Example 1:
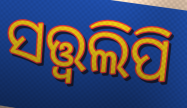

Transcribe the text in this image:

ସତ୍ତ୍ୱଲିପି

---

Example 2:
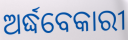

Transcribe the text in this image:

ଅର୍ଦ୍ଧବେକାରୀ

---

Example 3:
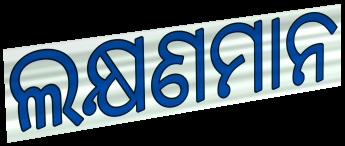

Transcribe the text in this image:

ଲକ୍ଷଣମାନ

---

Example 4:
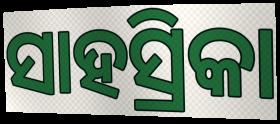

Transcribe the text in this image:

ସାହସ୍ରିକା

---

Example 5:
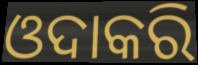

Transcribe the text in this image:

ଓଦାକରି